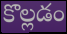
కొల్లడం